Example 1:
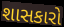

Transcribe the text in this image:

શાસકારો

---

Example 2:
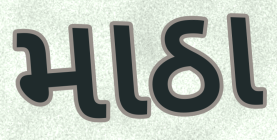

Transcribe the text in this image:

માઠા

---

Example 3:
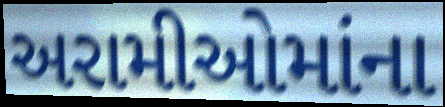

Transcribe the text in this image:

અરામીઓમાંના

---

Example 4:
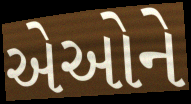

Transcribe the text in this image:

એઓને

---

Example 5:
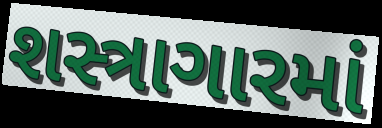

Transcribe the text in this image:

શસ્ત્રાગારમાં